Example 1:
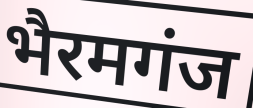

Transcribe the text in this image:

भैरमगंज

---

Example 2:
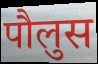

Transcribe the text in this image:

पौलुस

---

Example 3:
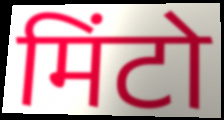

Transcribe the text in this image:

मिंटो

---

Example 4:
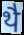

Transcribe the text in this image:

थै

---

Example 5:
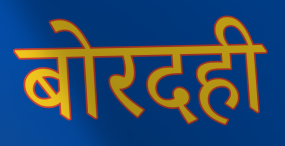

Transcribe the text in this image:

बोरदही